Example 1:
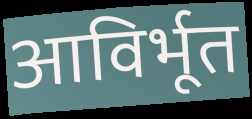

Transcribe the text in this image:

आविर्भूत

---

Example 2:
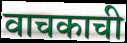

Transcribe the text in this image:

वाचकाची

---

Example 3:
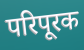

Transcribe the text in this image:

परिपूरक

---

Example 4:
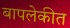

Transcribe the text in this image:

बापलेकीत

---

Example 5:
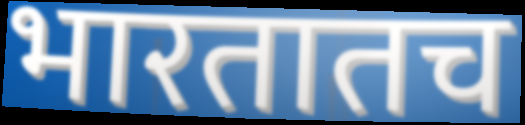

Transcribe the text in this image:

भारतातच